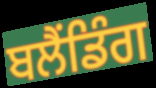
ਬਲੈਂਡਿੰਗ